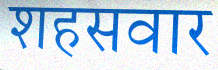
शहसवार